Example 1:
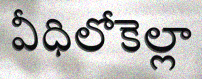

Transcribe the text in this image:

వీధిలోకెల్లా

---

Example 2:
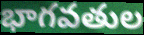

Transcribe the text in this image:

భాగవతుల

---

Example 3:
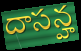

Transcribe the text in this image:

దాసన్హ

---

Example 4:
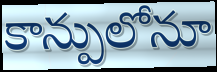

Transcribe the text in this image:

కాన్పులోనూ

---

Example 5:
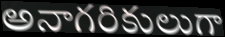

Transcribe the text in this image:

అనాగరికులుగా